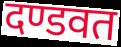
दण्‍डवत